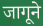
जागूने